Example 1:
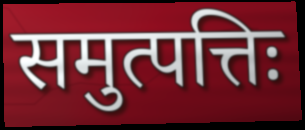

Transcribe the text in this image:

समुत्पत्तिः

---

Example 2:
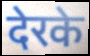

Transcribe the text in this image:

देरके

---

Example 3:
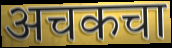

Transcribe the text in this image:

अचकचा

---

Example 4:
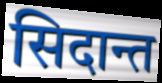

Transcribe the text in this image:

सिदान्त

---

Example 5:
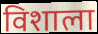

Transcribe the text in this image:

विशाला